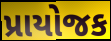
પ્રાયોજક